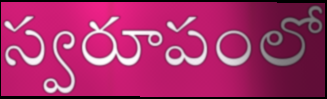
స్వరూపంలో